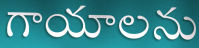
గాయాలను